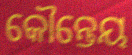
କୌନ୍ତେୟ